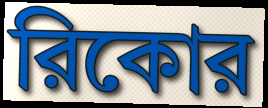
রিকোর